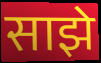
साझे